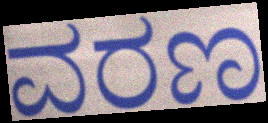
ವರಣ